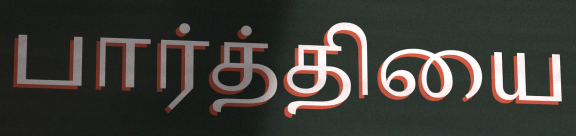
பார்த்தியை